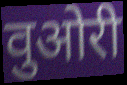
वुओरी